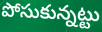
పోసుకున్నట్టు